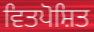
ਵਿਤਪੋਸ਼ਿਤ